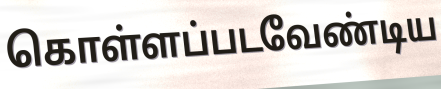
கொள்ளப்படவேண்டிய